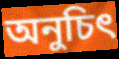
অনুচিৎ